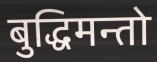
बुद्धिमन्तो